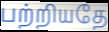
பற்றியதே